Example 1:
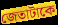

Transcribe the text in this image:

জেতাটাকে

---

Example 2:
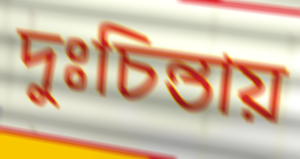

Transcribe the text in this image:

দুঃচিন্তায়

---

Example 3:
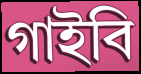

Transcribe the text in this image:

গাইবি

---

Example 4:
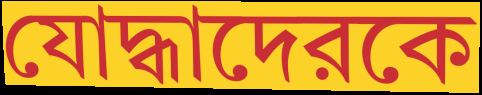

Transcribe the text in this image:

যোদ্ধাদেরকে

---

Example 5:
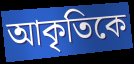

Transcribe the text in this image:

আকৃতিকে